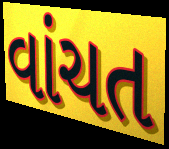
વાંચત